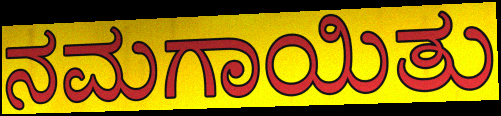
ನಮಗಾಯಿತು